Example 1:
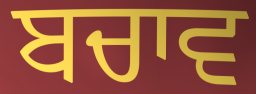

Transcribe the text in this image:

ਬਚਾਵ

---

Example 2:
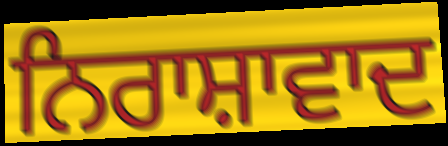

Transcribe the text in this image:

ਨਿਰਾਸ਼ਾਵਾਦ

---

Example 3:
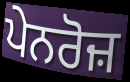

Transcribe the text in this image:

ਪੇਨਰੋਜ਼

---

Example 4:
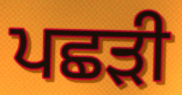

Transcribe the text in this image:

ਪਛੜੀ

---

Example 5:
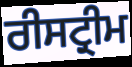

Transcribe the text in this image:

ਰੀਸਟ੍ਰੀਮ